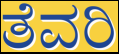
ತೆವರಿ